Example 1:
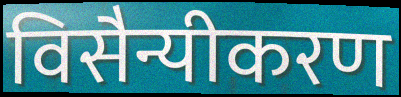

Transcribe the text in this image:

विसैन्यीकरण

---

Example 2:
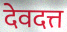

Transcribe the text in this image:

देवदत्त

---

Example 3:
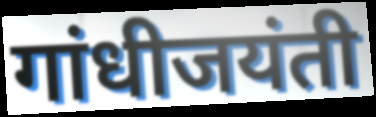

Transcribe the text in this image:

गांधीजयंती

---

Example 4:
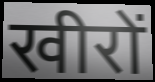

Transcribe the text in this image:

खीरों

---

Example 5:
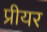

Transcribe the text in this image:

प्रीयर